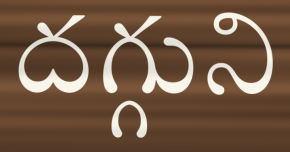
దగ్గుని